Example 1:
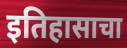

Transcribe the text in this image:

इतिहासाचा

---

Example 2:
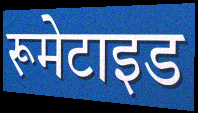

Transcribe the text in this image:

रूमेटाइड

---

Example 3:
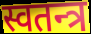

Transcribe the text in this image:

स्वतन्त्र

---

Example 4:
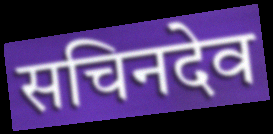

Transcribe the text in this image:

सचिनदेव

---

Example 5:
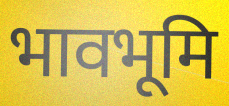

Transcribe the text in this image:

भावभूमि